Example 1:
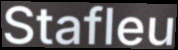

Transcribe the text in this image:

Stafleu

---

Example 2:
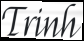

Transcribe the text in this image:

Trinh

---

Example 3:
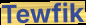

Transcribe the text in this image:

Tewfik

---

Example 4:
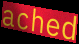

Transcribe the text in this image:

ached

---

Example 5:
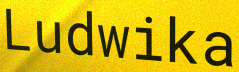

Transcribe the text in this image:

Ludwika